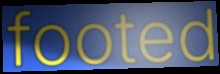
footed